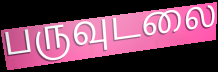
பருவுடலை